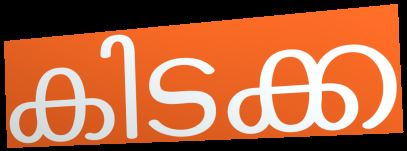
കിടക്ക